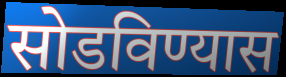
सोडविण्यास